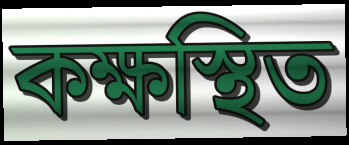
কক্ষস্থিত